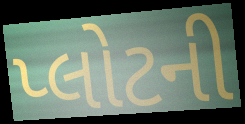
પ્લોટની